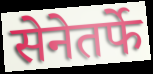
सेनेतर्फे